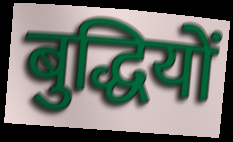
बुद्धियों